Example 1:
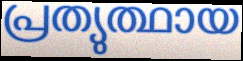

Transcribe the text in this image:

പ്രത്യുത്ഥായ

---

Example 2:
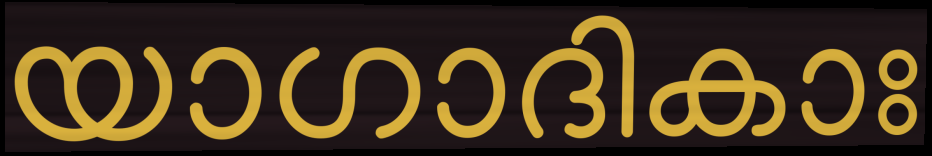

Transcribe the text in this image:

യാഗാദികാഃ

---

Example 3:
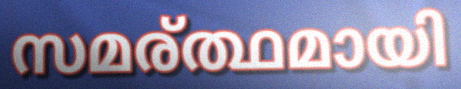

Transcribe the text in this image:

സമര്ത്ഥമായി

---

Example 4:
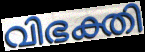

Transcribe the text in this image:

വിഭക്തി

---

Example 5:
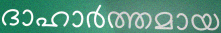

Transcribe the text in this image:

ദാഹാർത്തമായ